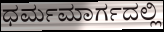
ಧರ್ಮಮಾರ್ಗದಲ್ಲಿ